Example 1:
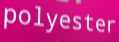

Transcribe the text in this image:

polyester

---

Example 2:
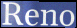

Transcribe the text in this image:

Reno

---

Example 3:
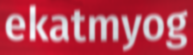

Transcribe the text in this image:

ekatmyog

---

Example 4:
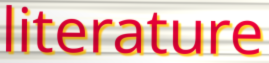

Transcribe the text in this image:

literature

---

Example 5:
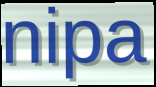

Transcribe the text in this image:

nipa